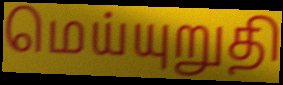
மெய்யுறுதி